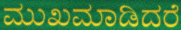
ಮುಖಮಾಡಿದರೆ